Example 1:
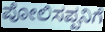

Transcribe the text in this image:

ಪೋಲಿಸಪ್ಪನಿಗೆ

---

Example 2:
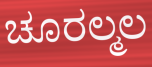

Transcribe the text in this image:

ಚೂರಲ್ಮಲ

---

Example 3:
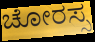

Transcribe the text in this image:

ಚೋರಸ್ಸ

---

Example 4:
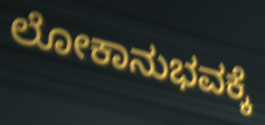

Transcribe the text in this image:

ಲೋಕಾನುಭವಕ್ಕೆ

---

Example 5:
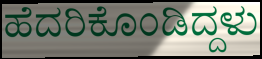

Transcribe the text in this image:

ಹೆದರಿಕೊಂಡಿದ್ದಳು